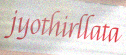
jyothirllata